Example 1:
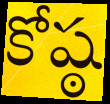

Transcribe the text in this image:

కోష్ఠ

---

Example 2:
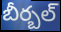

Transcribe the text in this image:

బీర్బల్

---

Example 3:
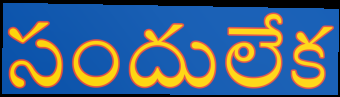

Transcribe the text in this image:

సందులేక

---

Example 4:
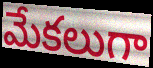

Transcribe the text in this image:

మేకలుగా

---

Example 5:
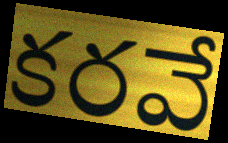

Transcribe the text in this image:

కరవే